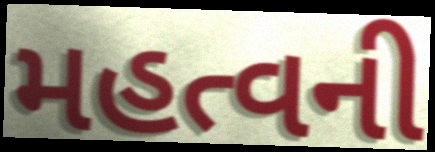
મહત્વની